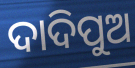
ଦାଦିପୁଅ